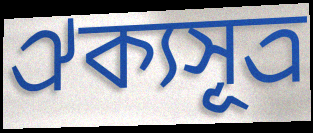
ঐক্যসূত্র